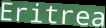
Eritrea